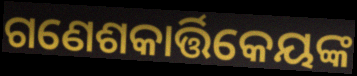
ଗଣେଶକାର୍ତ୍ତିକେୟଙ୍କ